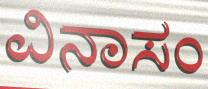
ವಿನಾಸಂ